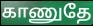
காணுதே